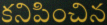
కనిపించిన